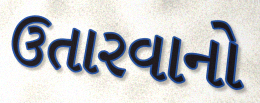
ઉતારવાનો